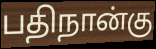
பதிநான்கு